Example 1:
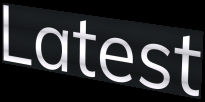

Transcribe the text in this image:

Latest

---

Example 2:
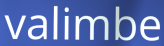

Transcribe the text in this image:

valimbe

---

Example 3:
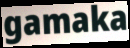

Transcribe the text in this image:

gamaka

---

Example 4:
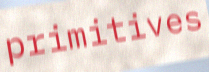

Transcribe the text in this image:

primitives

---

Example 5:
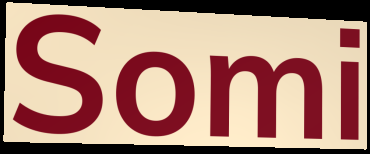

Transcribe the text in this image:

Somi